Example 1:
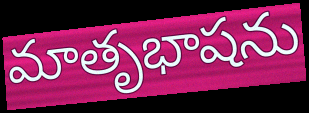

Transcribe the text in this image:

మాతృభాషను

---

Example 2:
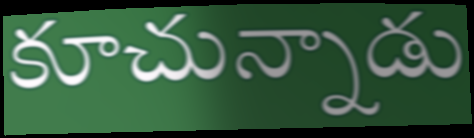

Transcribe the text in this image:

కూచున్నాడు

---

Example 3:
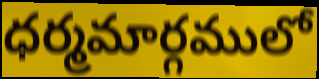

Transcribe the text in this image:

ధర్మమార్గములో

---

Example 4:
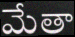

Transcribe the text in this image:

మేతా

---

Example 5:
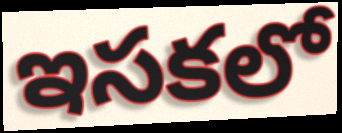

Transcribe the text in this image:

ఇసకలో